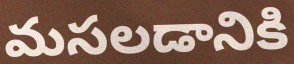
మసలడానికి